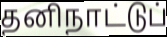
தனிநாட்டுப்